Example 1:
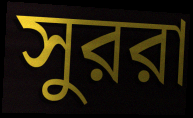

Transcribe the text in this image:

সুররা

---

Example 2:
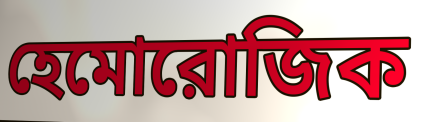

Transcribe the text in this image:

হেমোরোজিক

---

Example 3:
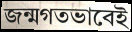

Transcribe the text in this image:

জন্মগতভাবেই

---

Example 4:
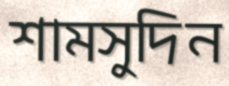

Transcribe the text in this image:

শামসুদিন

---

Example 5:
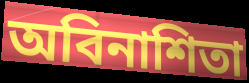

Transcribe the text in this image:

অবিনাশিতা